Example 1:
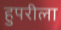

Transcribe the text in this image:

हुपरीला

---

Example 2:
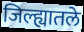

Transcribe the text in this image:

जिल्ह्यातले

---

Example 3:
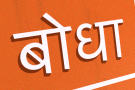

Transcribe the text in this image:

बोधा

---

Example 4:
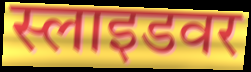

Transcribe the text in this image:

स्‍लाइडवर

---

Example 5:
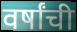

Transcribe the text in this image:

वर्षांची